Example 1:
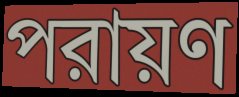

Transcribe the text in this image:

পরায়ণ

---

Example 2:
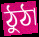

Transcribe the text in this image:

ঠুঠা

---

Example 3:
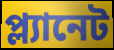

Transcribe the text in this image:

প্ল্যানেট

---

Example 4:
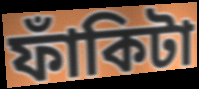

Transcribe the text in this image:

ফাঁকিটা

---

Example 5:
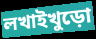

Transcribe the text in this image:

লখাইখুড়ো